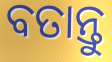
ବତାନ୍ତୁ